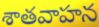
శాతవాహన